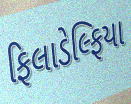
ફિલાડેલ્ફિયા